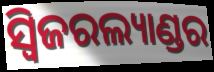
ସ୍ୱିଜରଲ୍ୟାଣ୍ଡର